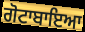
ਗੋਟਾਬਾਇਆ